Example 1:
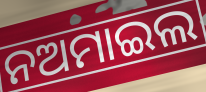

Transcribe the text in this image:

ନଅମାଇଲ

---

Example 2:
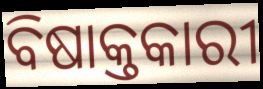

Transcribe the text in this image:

ବିଷାକ୍ତକାରୀ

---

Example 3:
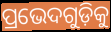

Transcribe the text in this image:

ପ୍ରଭେଦଗୁଡ଼ିକୁ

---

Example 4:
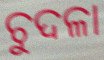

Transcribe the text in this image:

ଚୁଦଳା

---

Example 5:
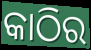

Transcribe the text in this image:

କାଠିର